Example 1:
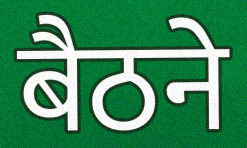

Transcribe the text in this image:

बैठने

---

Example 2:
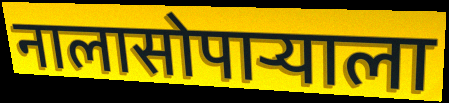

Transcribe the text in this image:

नालासोपाऱ्याला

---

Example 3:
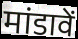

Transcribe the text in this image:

मांडावें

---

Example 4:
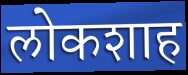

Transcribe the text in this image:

लोकशाह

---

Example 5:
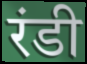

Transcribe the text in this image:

रंडी